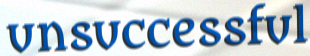
unsuccessful